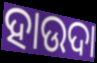
ହାଉଦା